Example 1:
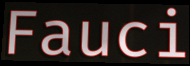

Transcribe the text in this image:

Fauci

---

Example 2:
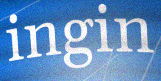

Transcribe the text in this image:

ingin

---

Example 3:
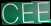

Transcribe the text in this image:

CEE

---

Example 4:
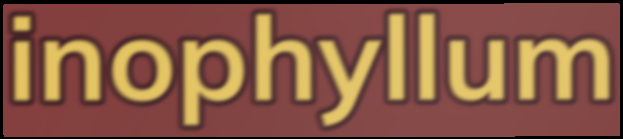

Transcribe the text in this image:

inophyllum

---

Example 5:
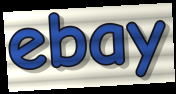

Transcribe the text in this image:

ebay